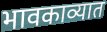
भावकाव्यात